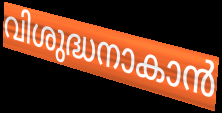
വിശുദ്ധനാകാൻ